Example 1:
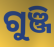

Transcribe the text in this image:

ଗୁଞ୍ଜି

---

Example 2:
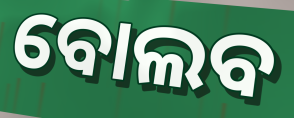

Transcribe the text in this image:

ବୋଲବ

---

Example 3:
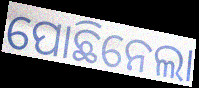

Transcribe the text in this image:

ପୋଛିନେଲା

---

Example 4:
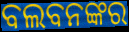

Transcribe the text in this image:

ବଲବନଙ୍କର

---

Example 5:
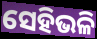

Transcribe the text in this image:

ସେହିଭଳି